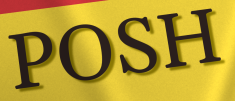
POSH